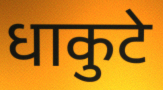
धाकुटे